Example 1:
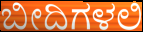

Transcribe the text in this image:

ಬೀದಿಗಳಲಿ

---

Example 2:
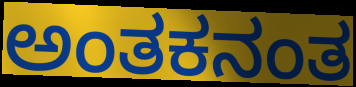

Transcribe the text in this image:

ಅಂತಕನಂತ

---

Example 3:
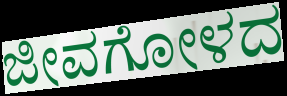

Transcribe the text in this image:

ಜೀವಗೋಳದ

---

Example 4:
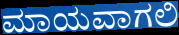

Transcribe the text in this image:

ಮಾಯವಾಗಲಿ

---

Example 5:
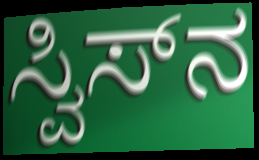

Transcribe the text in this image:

ಸ್ವಿಸ್‌ನ